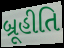
બ્રૂહીતિ